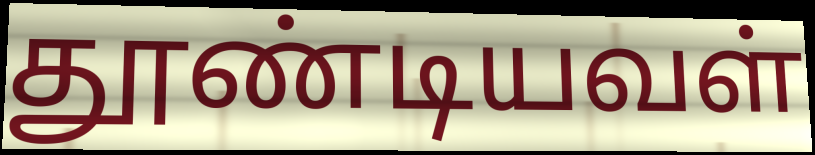
தூண்டியவள்